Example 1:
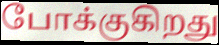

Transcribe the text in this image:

போக்குகிறது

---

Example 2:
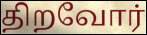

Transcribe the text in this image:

திறவோர்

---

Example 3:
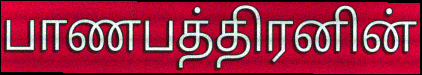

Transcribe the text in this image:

பாணபத்திரனின்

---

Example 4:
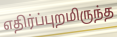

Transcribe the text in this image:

எதிர்ப்புறமிருந்த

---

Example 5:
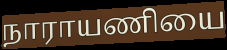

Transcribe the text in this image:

நாராயணியை